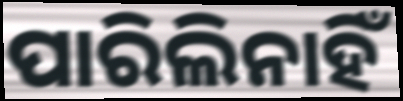
ପାରିଲିନାହିଁ